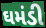
ઘમંડી